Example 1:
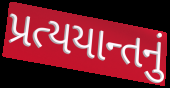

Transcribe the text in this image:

પ્રત્યયાન્તનું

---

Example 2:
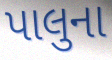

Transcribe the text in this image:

પાલુના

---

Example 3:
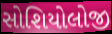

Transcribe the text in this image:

સોશિયોલોજી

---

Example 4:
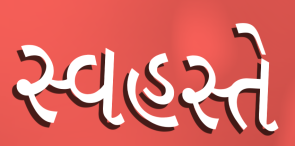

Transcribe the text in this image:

સ્વહસ્તે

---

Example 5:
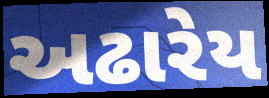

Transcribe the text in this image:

અઢારેય